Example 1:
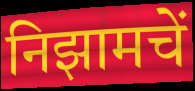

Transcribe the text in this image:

निझामचें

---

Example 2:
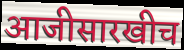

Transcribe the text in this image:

आजीसारखीच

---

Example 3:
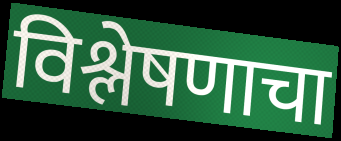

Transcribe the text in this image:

विश्लेषणाचा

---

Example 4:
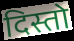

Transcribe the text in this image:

दिस्तो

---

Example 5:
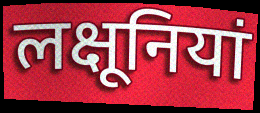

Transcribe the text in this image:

लक्षूनियां